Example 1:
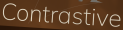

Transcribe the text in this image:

Contrastive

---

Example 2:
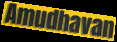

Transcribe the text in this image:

Amudhavan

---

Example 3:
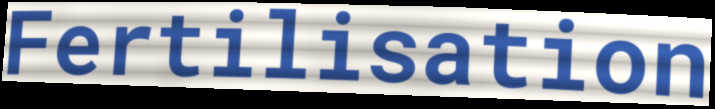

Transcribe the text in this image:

Fertilisation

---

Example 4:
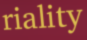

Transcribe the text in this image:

riality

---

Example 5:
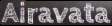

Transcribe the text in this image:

Airavata